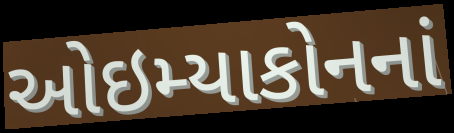
ઓઇમ્યાકોનનાં